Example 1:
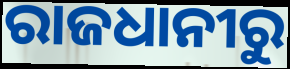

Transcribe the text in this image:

ରାଜଧାନୀରୁ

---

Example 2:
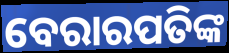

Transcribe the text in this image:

ବେରାରପତିଙ୍କ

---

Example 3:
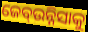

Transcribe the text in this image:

ଜେବ୍ଉନ୍ନିସାକୁ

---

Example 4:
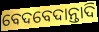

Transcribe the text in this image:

ବେଦବେଦାନ୍ତାଦି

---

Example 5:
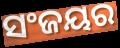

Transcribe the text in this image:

ସଂଜୟର